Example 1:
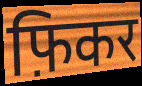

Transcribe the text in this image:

फ़िकर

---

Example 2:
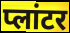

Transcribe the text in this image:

प्लांटर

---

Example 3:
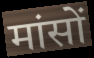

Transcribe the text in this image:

मांसों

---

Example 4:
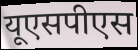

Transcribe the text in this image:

यूएसपीएस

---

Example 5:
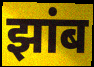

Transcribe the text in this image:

झांब